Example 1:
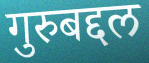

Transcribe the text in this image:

गुरुबद्दल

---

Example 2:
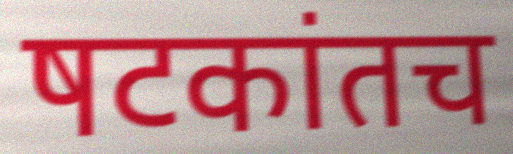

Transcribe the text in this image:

षटकांतच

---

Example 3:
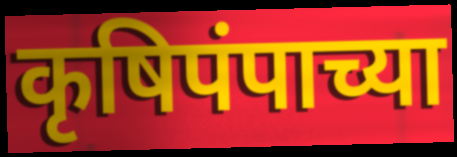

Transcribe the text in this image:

कृषिपंपाच्या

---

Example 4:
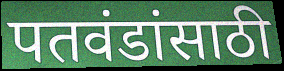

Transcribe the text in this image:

पतवंडांसाठी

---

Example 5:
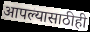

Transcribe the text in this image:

आपल्यासाठीही